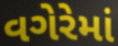
વગેરેમાં